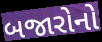
બજારોનો